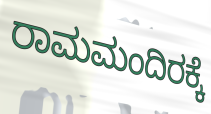
ರಾಮಮಂದಿರಕ್ಕೆ